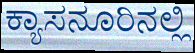
ಕ್ಯಾಸನೂರಿನಲ್ಲಿ